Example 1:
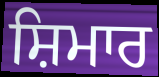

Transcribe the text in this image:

ਸ਼ਿਮਾਰ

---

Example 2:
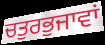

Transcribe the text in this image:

ਚਤੁਰਭੁਜਾਵਾਂ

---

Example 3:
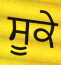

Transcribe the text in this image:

ਸੂਕੇ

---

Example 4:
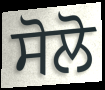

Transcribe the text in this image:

ਸੋਲੋ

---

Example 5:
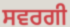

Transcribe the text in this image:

ਸਵਰਗੀ